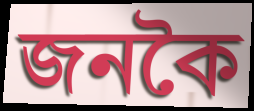
জনকৈ